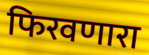
फिरवणारा